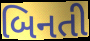
બિનતી